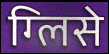
ग्लिसे